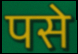
पसे